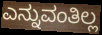
ಎನ್ನುವಂತಿಲ್ಲ